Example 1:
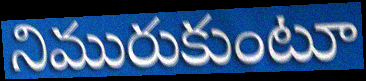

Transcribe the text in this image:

నిమురుకుంటూ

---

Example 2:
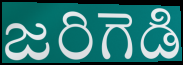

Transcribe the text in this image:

జరిగెడి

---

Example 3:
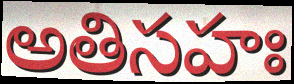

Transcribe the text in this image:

అతిసహః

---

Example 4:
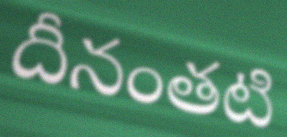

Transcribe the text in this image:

దీనంతటి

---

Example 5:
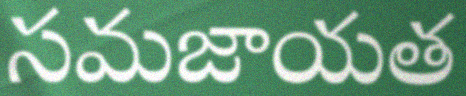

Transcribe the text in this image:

సమజాయత